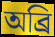
অব্ৰি